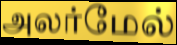
அலர்மேல்